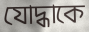
যোদ্ধাকে